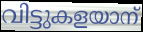
വിട്ടുകളയാന്